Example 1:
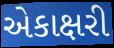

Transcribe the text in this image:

એકાક્ષરી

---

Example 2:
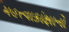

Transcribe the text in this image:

મહત્ત્વાકાંક્ષાનો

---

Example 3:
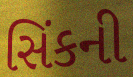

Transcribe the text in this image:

સિંકની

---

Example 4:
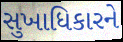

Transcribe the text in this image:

સુખાધિકારને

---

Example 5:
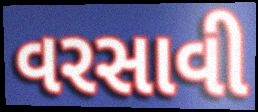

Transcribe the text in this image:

વરસાવી